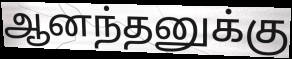
ஆனந்தனுக்கு